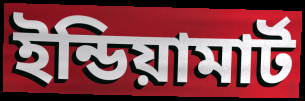
ইন্ডিয়ামার্ট